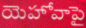
యెహోవాపై